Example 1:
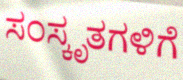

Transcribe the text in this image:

ಸಂಸ್ಕೃತಗಳಿಗೆ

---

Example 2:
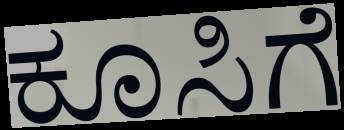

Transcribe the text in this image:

ಕೂಸಿಗೆ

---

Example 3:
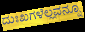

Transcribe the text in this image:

ದುಃಖಗಳೆಲ್ಲವನ್ನೂ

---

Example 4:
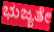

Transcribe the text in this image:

ಭುಜ್ಯತೇ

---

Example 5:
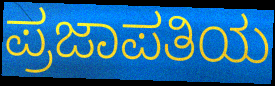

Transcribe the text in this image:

ಪ್ರಜಾಪತಿಯ